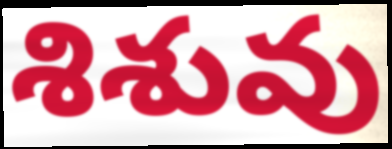
శిశువు